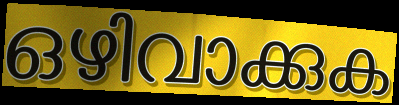
ഒഴിവാക്കുക